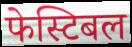
फेस्टिबल